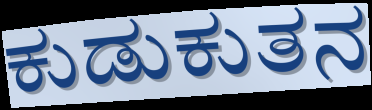
ಕುಡುಕುತನ